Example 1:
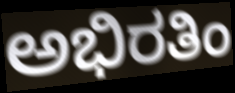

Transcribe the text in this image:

ಅಭಿರತಿಂ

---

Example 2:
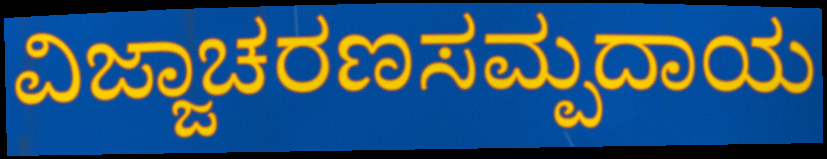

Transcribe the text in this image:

ವಿಜ್ಜಾಚರಣಸಮ್ಪದಾಯ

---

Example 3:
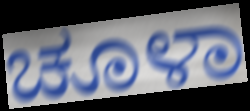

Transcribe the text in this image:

ಚೂಳಾ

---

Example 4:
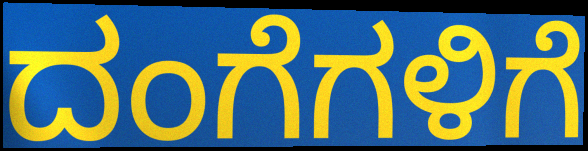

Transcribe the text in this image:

ದಂಗೆಗಳಿಗೆ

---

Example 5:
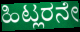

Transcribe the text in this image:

ಹಿಟ್ಲರನೇ